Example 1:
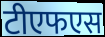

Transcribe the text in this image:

टीएफएस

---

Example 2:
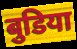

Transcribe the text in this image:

बुडिया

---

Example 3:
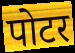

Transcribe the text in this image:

पोटर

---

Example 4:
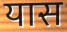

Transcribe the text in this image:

यास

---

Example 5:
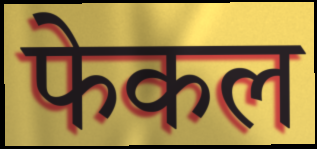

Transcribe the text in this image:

फेकल